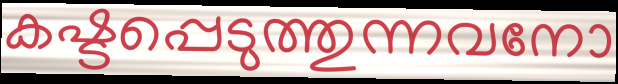
കഷ്ടപ്പെടുത്തുന്നവനോ